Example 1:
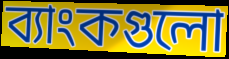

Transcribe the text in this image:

ব্যাংকগুলো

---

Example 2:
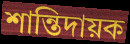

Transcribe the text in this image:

শান্তিদায়ক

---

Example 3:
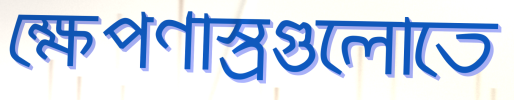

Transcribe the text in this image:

ক্ষেপণাস্ত্রগুলোতে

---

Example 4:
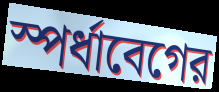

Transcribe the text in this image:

স্পর্ধাবেগের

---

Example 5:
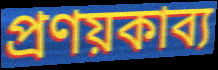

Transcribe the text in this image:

প্রণয়কাব্য